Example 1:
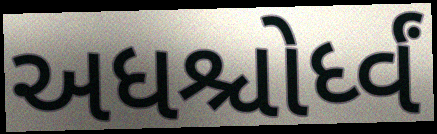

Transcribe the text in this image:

અધશ્ચોર્ધ્વં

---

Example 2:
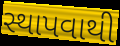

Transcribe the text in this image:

સ્થાપવાથી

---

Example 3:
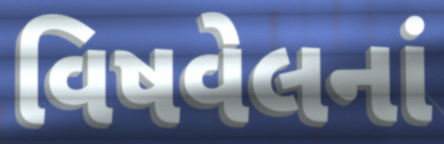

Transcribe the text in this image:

વિષવેલનાં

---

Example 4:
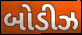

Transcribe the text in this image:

બોડીઝ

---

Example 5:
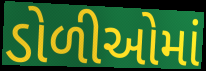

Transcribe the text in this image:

ડોળીઓમાં